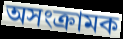
অসংক্রামক